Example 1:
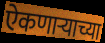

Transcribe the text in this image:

ऐकणाऱ्याच्या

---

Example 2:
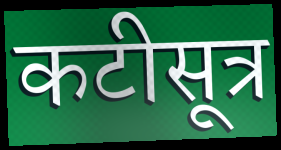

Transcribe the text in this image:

कटीसूत्र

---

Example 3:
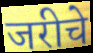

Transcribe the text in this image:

जरीचे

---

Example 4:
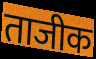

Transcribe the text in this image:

ताजीक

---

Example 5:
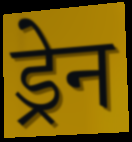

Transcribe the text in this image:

ड्रेन